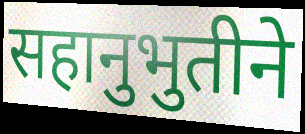
सहानुभुतीने